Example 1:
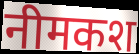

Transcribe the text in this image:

नीमकश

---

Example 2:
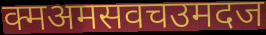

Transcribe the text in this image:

क्मअमसवचउमदज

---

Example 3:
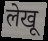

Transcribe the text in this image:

लेखू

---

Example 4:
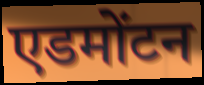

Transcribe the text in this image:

एडमोंटन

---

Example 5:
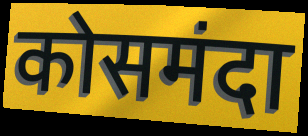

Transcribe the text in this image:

कोसमंदा